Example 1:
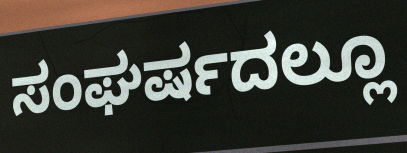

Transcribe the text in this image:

ಸಂಘರ್ಷದಲ್ಲೂ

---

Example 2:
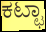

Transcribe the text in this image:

ಕಟ್ಟಾ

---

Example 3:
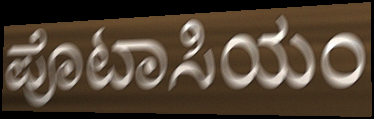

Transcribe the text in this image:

ಪೊಟಾಸಿಯಂ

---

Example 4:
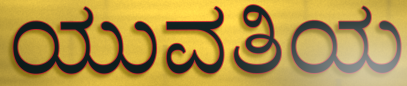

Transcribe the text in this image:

ಯುವತಿಯ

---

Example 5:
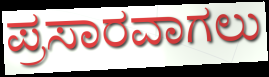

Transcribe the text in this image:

ಪ್ರಸಾರವಾಗಲು